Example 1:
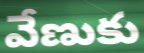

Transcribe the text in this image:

వేణుకు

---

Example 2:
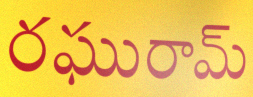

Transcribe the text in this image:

రఘురామ్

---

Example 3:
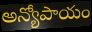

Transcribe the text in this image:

అన్యోపాయం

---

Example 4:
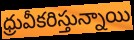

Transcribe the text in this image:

ధ్రువీకరిస్తున్నాయి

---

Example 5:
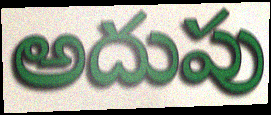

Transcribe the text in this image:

అదుపు